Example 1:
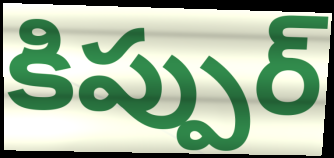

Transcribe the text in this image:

కిప్పుర్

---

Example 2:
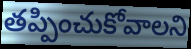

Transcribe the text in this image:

తప్పించుకోవాలని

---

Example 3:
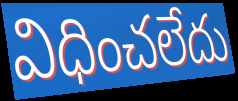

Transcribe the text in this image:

విధించలేదు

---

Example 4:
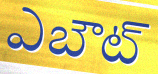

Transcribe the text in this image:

ఎబౌట్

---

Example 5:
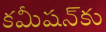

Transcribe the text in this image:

కమీషన్‌కు